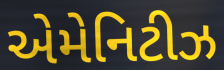
એમેનિટીઝ